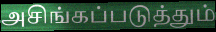
அசிங்கப்படுத்தும்